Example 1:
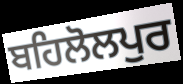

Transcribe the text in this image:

ਬਹਿਲੋਲਪੁਰ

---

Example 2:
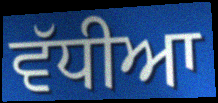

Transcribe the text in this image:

ਵੱਧੀਆ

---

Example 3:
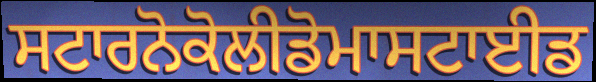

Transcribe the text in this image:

ਸਟਾਰਨੋਕੋਲੀਡੋਮਾਸਟਾਈਡ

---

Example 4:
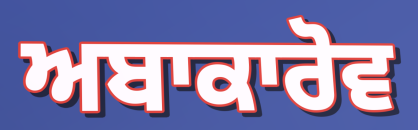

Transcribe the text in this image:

ਅਬਾਕਾਰੋਵ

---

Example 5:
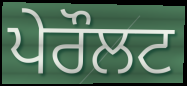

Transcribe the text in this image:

ਪੇਰੌਲਟ